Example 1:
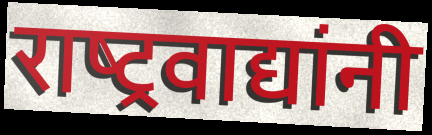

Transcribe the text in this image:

राष्ट्रवाद्यांनी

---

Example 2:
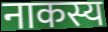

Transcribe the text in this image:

नाकस्य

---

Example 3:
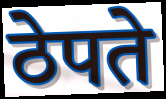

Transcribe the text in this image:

ठेपते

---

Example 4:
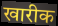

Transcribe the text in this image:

खारीक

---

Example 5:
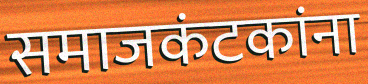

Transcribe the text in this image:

समाजकंटकांना